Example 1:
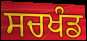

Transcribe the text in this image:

ਸਚਖੰਡ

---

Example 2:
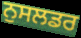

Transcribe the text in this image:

ਨੁਸਲਡਰ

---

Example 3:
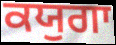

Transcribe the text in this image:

ਕਯੁਗਾ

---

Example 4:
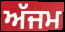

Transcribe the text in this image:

ਅੱਜਮ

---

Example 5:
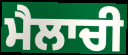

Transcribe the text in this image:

ਮੈਲਾਚੀ